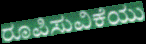
ರೂಪಿಸುವಿಕೆಯು